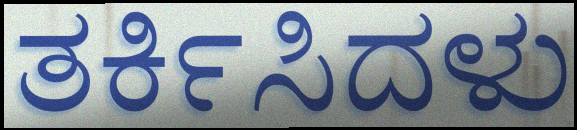
ತರ್ಕಿಸಿದಳು